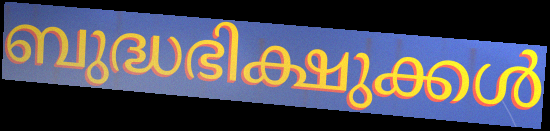
ബുദ്ധഭിക്ഷുക്കൾ